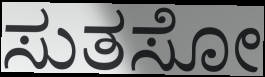
ಸುತಸೋ